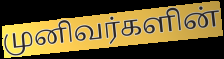
முனிவர்களின்